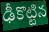
ఢీకొట్టిన